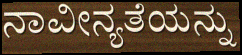
ನಾವೀನ್ಯತೆಯನ್ನು